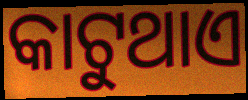
କାଟୁଥାଏ